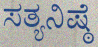
ಸತ್ಯನಿಷ್ಠೆ